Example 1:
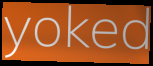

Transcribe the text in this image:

yoked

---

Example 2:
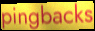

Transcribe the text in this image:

pingbacks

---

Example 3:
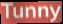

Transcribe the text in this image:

Tunny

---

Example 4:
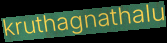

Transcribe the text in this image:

kruthagnathalu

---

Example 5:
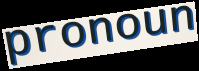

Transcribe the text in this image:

pronoun